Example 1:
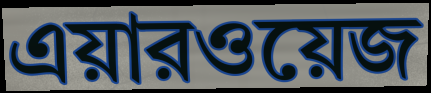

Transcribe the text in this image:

এয়ারওয়েজ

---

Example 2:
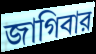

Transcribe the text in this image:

জাগিবার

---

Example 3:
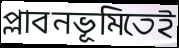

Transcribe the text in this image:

প্লাবনভূমিতেই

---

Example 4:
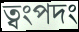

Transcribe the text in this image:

ত্বংপদং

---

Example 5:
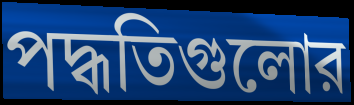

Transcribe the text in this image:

পদ্ধতিগুলোর